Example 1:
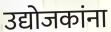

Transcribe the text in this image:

उद्योजकांना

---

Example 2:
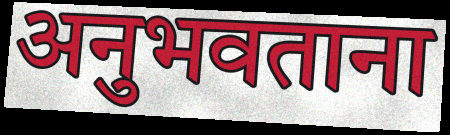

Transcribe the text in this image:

अनुभवताना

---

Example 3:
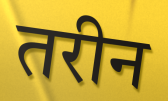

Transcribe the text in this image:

तरीन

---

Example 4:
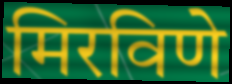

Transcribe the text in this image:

मिरविणे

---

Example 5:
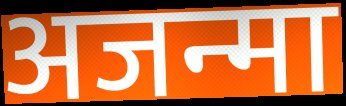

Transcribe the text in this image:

अजन्मा